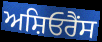
ਅਸ਼ਿਓਰੈਂਸ